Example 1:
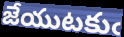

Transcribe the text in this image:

జేయుటకుఁ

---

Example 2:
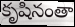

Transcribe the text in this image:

కృషినంతా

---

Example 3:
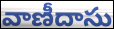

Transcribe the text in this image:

వాణీదాసు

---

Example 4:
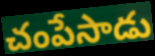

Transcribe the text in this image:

చంపేసాడు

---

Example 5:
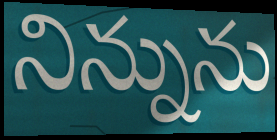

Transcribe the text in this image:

నిన్నును